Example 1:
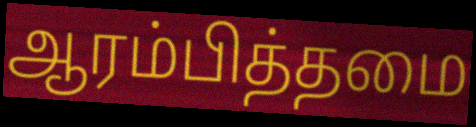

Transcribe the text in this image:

ஆரம்பித்தமை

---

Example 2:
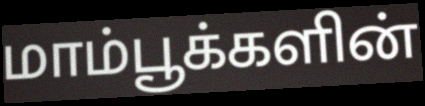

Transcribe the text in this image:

மாம்பூக்களின்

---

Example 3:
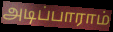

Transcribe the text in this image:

அடிப்பாராம்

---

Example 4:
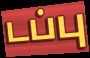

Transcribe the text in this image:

டப்பு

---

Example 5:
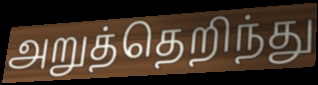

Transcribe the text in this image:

அறுத்தெறிந்து